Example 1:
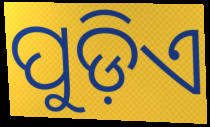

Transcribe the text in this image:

ପୁଡ଼ିଏ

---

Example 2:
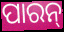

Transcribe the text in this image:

ପାରନ୍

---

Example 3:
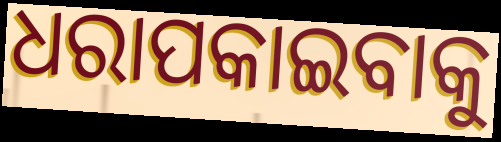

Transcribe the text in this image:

ଧରାପକାଇବାକୁ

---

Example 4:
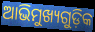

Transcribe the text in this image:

ଆଭିମୁଖ୍ୟଗୁଡ଼ିକ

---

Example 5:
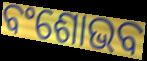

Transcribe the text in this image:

ବଂଶୋଭବ